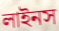
লাইনস